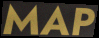
MAP